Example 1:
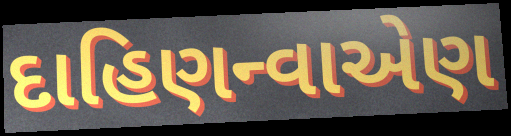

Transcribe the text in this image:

દાહિણન્વાએણ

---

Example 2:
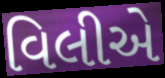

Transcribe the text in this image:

વિલીએ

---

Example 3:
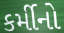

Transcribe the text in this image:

કર્મીનો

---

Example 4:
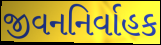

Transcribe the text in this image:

જીવનનિર્વાહક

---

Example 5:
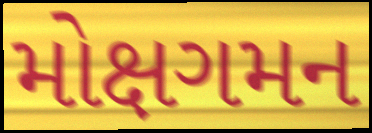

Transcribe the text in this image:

મોક્ષગમન